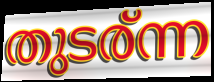
തുടര്ന്ന